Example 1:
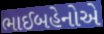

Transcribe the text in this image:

ભાઈબહેનોએ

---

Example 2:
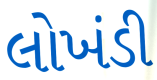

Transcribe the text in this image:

લોખંડી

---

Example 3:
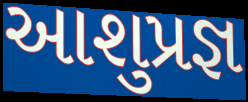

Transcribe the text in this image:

આશુપ્રજ્ઞ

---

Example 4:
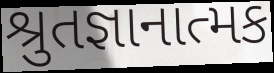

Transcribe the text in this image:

શ્રુતજ્ઞાનાત્મક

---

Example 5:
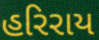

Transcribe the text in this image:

હરિરાય